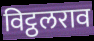
विट्ठलराव